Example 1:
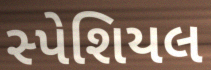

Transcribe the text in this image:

સ્પેશિયલ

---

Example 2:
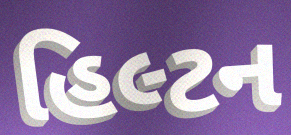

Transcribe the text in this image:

હિલ્ટન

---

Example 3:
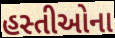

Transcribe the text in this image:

હસ્તીઓના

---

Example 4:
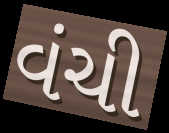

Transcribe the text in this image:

વંચી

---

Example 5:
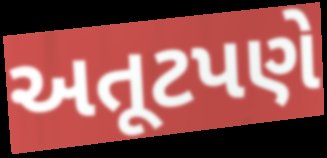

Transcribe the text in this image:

અતૂટપણે